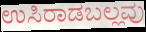
ಉಸಿರಾಡಬಲ್ಲವು